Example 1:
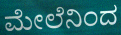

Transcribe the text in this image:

ಮೇಲೆನಿಂದ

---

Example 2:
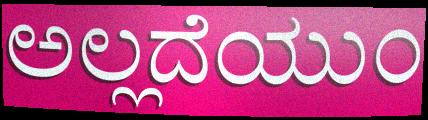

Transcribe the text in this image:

ಅಲ್ಲದೆಯುಂ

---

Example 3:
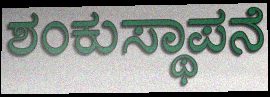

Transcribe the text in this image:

ಶಂಕುಸ್ಥಾಪನೆ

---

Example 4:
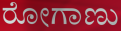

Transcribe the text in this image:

ರೋಗಾಣು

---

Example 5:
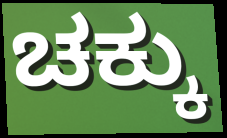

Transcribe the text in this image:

ಚಕ್ಕು